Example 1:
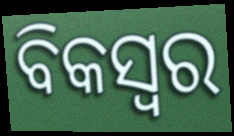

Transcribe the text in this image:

ବିକସ୍ୱର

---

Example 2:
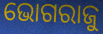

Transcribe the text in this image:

ଭୋଗରାଜୁ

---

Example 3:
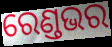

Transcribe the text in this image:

ରେଣ୍ଡଭର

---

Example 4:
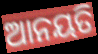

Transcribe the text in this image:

ଆନୟତି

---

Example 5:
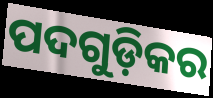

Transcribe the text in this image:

ପଦଗୁଡ଼ିକର